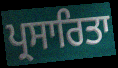
ਪ੍ਰਸਾਰਿਤਾ